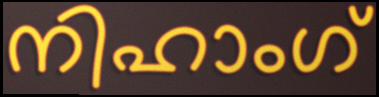
നിഹാംഗ്